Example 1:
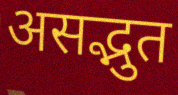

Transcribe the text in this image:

असद्भुत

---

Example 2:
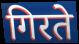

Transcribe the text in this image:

गिरते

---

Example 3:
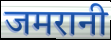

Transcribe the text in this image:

जमरानी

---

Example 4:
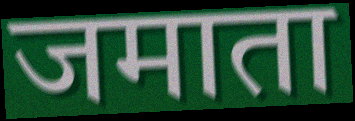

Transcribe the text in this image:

जमाता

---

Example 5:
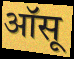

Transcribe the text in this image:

ऑसू